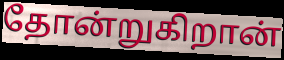
தோன்றுகிறான்